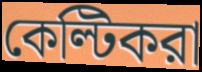
কেল্টিকরা